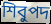
শিবুপদ